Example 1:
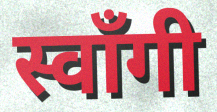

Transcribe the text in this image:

स्वाँगी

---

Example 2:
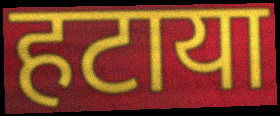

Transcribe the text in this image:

हटाया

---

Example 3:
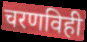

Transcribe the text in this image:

चरणविही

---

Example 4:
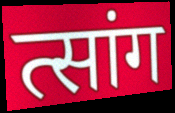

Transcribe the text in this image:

त्सांग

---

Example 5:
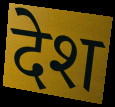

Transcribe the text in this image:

देश